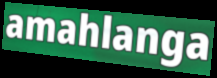
amahlanga